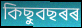
কিছুবছৰৰ